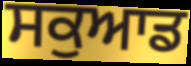
ਸਕੁਆਡ